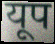
यूप